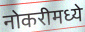
नोकरीमध्ये